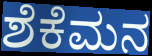
ಶೆಕೆಮನ